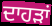
ਦਾਹੜਾਂ